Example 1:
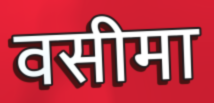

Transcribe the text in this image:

वसीमा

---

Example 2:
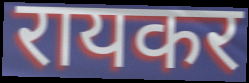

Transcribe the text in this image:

रायकर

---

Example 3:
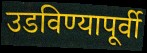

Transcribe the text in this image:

उडविण्यापूर्वी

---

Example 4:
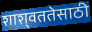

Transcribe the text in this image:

शाश्वततेसाठी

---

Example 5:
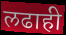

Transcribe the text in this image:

लढाही